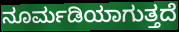
ನೂರ್ಮಡಿಯಾಗುತ್ತದೆ